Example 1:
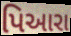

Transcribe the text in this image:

પિઆરા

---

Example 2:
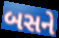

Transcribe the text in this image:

બસને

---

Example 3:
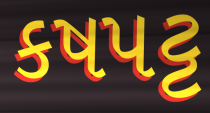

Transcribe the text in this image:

કષપટ્ટ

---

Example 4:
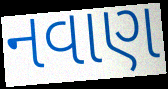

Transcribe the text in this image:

નવાણ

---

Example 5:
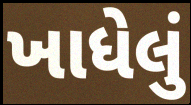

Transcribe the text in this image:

ખાધેલું